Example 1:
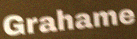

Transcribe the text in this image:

Grahame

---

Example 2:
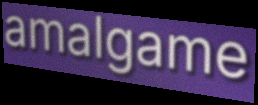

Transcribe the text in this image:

amalgame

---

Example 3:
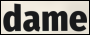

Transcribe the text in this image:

dame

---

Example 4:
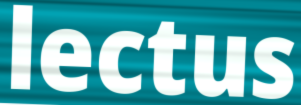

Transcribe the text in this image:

lectus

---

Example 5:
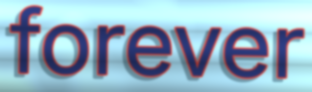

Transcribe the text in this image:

forever